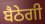
ਬੈਠੇਗੀ